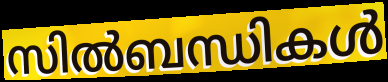
സിൽബന്ധികൾ